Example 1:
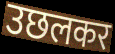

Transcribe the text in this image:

उछलकर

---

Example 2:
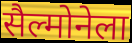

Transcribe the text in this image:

सैल्मोनेला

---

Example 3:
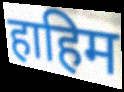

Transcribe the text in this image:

हाहिम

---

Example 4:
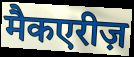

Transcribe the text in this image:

मैकएरीज़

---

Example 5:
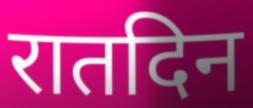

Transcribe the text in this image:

रातदिन